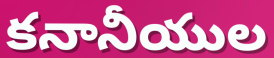
కనానీయుల